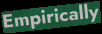
Empirically